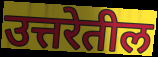
उत्तरेतील